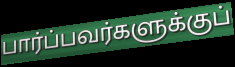
பார்ப்பவர்களுக்குப்